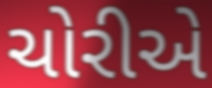
ચોરીએ